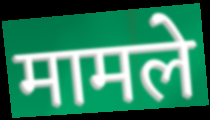
मामले